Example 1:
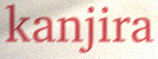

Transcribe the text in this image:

kanjira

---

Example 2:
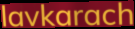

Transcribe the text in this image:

lavkarach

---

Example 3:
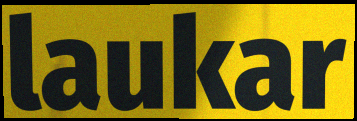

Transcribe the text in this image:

laukar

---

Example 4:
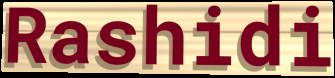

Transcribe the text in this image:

Rashidi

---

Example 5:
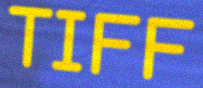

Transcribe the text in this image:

TIFF